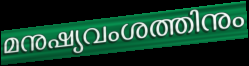
മനുഷ്യവംശത്തിനും